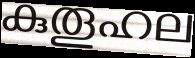
കുതൂഹല